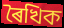
ৰৈখিক